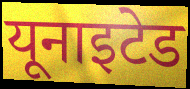
यूनाइटेड